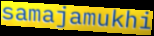
samajamukhi